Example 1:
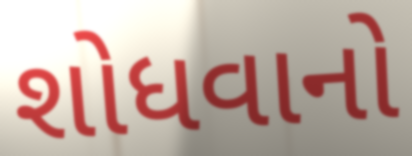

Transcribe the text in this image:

શોધવાનો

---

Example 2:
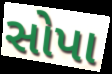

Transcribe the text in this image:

સોપા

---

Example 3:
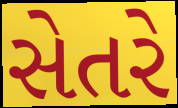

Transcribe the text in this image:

સેતરે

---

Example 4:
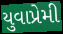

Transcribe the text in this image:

યુવાપ્રેમી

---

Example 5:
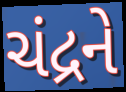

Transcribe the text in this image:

ચંદ્રને